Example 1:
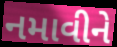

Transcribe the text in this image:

નમાવીને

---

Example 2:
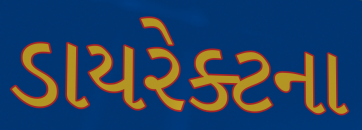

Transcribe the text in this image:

ડાયરેક્ટના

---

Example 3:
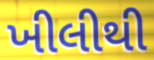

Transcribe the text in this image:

ખીલીથી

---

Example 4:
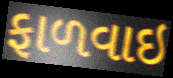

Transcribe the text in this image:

ફાળવાઇ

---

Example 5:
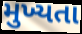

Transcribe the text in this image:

મુખ્યતા